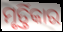
ମୃର୍ତ୍ତିକାର